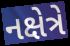
નક્ષેત્રે